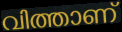
വിത്താണ്